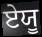
ਏਯੂ